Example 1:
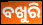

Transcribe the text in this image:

ବଖୁରି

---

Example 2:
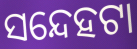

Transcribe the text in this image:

ସନ୍ଦେହଟା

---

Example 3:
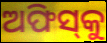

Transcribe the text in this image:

ଅଫିସ୍‌କୁ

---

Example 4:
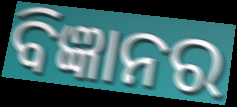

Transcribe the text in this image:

ବିଜ୍ଞାନର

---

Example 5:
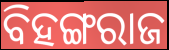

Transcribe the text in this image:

ବିହଙ୍ଗରାଜ